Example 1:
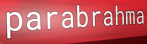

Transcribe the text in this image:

parabrahma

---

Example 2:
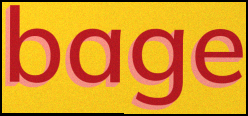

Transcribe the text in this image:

bage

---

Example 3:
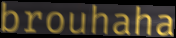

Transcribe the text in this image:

brouhaha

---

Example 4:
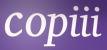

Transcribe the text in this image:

copiii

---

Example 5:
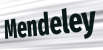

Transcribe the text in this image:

Mendeley